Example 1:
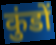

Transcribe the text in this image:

कुंडों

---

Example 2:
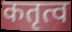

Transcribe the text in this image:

कतृत्व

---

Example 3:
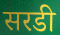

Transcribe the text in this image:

सरडी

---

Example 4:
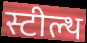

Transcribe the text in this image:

स्टील्थ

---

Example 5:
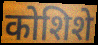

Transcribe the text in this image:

कोशिशे